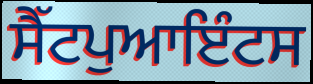
ਸੈੱਟਪੁਆਇੰਟਸ